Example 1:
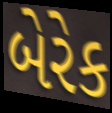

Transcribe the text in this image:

બેરેક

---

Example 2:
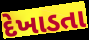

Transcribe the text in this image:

દેખાડતા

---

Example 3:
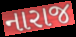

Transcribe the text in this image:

નારાજ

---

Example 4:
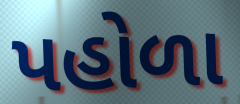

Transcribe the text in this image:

પહોળા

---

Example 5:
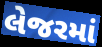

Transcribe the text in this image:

લેજરમાં